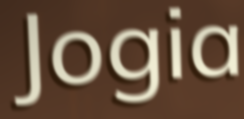
Jogia